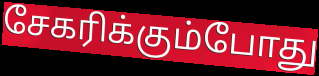
சேகரிக்கும்போது